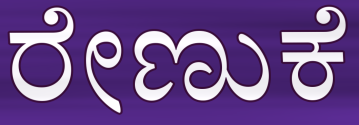
ರೇಣುಕೆ